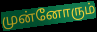
முன்னோரும்